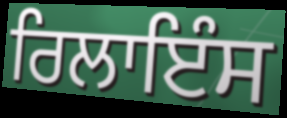
ਰਿਲਾਇੰਸ